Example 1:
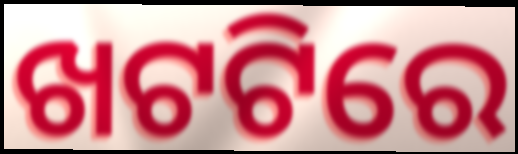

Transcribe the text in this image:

ଖଟଟିରେ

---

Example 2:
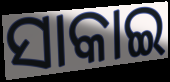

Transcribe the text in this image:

ସାକାଇ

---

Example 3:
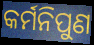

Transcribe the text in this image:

କର୍ମନିପୁଣ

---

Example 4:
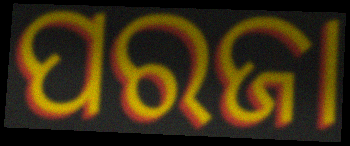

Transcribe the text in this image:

ପରଜା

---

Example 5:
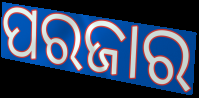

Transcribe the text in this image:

ପରଜାର